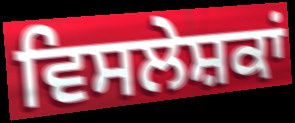
ਵਿਸਲੇਸ਼ਕਾਂ